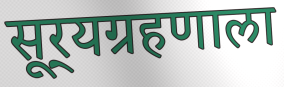
सूर्यग्रहणाला